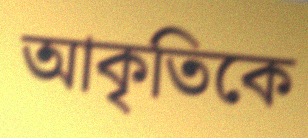
আকৃতিকে